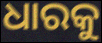
ଧାରକୁ